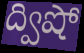
ద్విషో